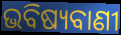
ଭବିଷ୍ୟବାଣୀ